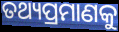
ତଥ୍ୟପ୍ରମାଣକୁ